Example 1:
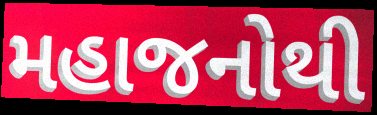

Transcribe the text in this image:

મહાજનોથી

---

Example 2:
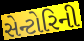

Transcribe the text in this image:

સેન્ટોરિની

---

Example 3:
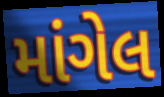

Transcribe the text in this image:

માંગેલ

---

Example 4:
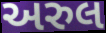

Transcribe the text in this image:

અરુલ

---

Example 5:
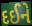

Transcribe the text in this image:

દઈને